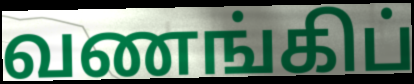
வணங்கிப்